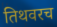
तिथवरच